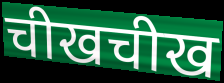
चीखचीख